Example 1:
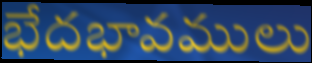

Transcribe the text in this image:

భేదభావములు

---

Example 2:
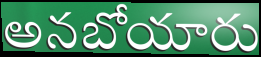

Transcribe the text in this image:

అనబోయారు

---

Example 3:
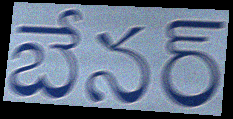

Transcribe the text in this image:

బేనర్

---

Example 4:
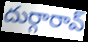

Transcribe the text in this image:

దుర్గారావ్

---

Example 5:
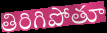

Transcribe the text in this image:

తిరిగిపోతూ